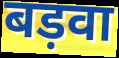
बड़वा